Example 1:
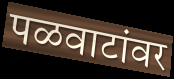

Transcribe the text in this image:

पळवाटांवर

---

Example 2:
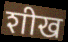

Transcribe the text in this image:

शीख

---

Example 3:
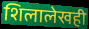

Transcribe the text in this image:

शिलालेखही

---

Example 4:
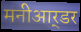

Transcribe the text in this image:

मनीआर्डर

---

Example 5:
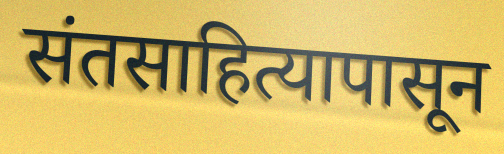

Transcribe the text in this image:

संतसाहित्यापासून